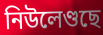
নিউলেণ্ডছে